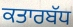
ਕਤਾਰਬੱਧ